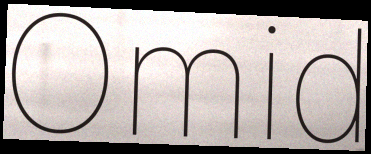
Omid